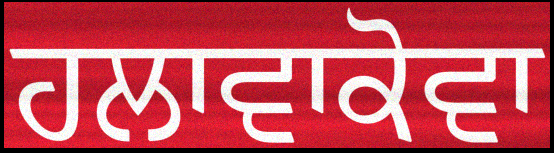
ਹਲਾਵਾਕੋਵਾ